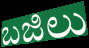
ಬಜಿಲು